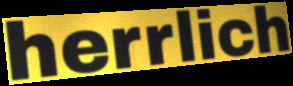
herrlich